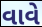
વાવે